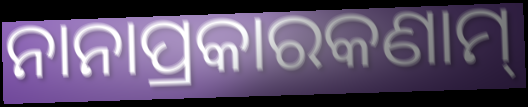
ନାନାପ୍ରକାରକଣାମ୍